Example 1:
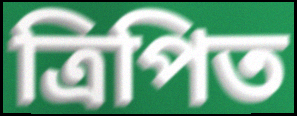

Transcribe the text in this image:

ত্রিপিত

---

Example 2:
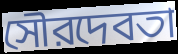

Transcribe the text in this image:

সৌরদেবতা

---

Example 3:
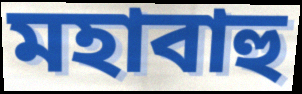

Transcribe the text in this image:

মহাবাহু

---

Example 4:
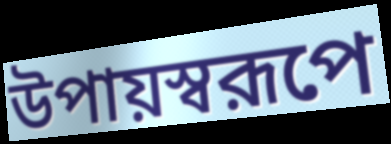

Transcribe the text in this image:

উপায়স্বরূপে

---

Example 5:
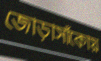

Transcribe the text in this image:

জোড়াসাঁকোয়